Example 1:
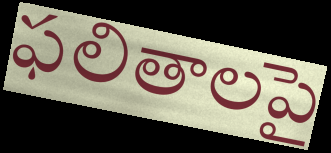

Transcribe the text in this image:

ఫలితాలపై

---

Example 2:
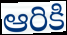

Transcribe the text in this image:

ఆరికి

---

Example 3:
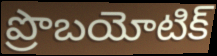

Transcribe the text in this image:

ప్రొబయోటిక్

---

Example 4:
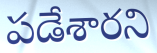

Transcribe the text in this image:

పడేశారని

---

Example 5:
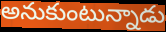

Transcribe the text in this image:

అనుకుంటున్నాడు